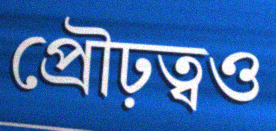
প্রৌঢ়ত্বও